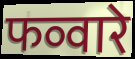
फव्‍वारे